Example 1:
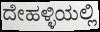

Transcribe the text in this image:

ದೇಹಳ್ಳಿಯಲ್ಲಿ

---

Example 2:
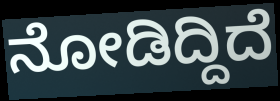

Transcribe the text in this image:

ನೋಡಿದ್ದಿದೆ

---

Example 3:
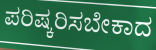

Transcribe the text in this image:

ಪರಿಷ್ಕರಿಸಬೇಕಾದ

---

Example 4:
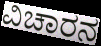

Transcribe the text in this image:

ವಿಚಾರನ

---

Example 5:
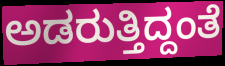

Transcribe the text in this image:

ಅಡರುತ್ತಿದ್ದಂತೆ